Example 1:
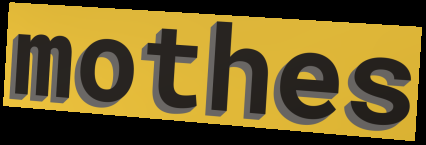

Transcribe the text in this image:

mothes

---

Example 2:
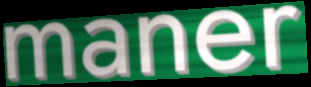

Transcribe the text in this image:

maner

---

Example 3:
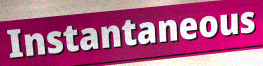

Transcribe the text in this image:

Instantaneous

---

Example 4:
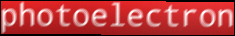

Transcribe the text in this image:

photoelectron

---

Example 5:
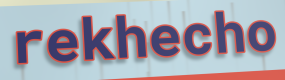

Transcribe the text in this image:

rekhecho